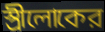
স্ত্রীলোকের